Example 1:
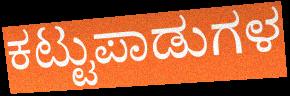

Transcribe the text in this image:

ಕಟ್ಟುಪಾಡುಗಳ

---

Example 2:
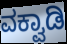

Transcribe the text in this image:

ವಕ್ವಾಡಿ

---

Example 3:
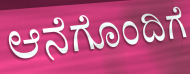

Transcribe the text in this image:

ಆನೆಗೊಂದಿಗೆ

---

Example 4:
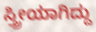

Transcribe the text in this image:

ಸ್ತ್ರೀಯಾಗಿದ್ದು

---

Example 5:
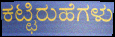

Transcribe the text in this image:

ಕಟ್ಟಿರುಹೆಗಳು